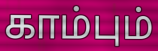
காம்பும்